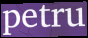
petru